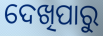
ଦେଖିପାରୁ